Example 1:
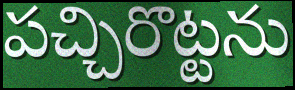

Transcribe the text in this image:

పచ్చిరొట్టను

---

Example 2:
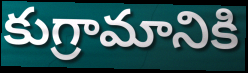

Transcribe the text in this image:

కుగ్రామానికి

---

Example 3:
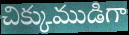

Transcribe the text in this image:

చిక్కుముడిగా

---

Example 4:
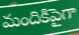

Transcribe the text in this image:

మందికిపైగా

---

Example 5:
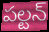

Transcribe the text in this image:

పల్టన్